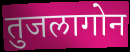
तुजलागोन